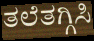
ತಲೆತಗ್ಗಿಸಿ